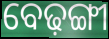
ବେଢ଼ଙ୍ଗୀ